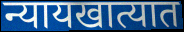
न्यायखात्यात